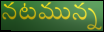
నటమున్న